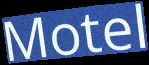
Motel